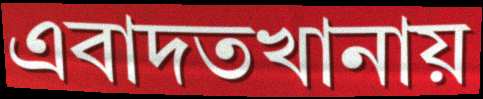
এবাদতখানায়